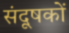
संदूषकों